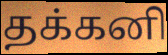
தக்கனி